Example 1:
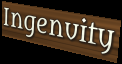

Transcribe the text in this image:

Ingenuity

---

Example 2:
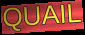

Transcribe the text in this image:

QUAIL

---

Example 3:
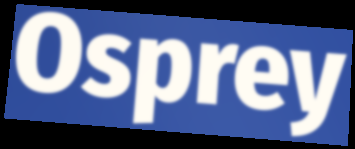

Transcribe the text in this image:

Osprey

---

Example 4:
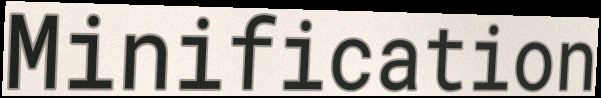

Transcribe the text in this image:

Minification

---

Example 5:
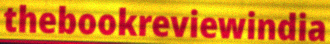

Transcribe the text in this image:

thebookreviewindia